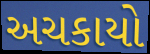
અચકાયો